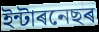
ইন্টাৰনেছৰ